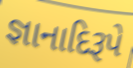
જ્ઞાનાદિરૂપે